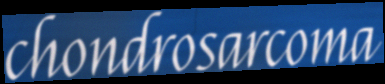
chondrosarcoma